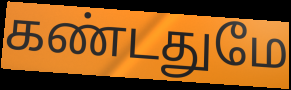
கண்டதுமே